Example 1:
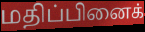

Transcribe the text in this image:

மதிப்பினைக்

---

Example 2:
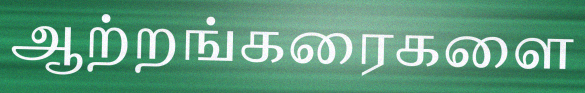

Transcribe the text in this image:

ஆற்றங்கரைகளை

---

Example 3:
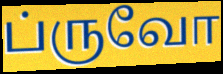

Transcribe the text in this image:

ப்ருவோ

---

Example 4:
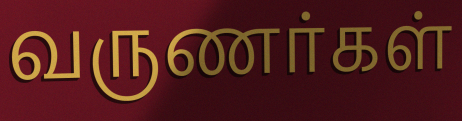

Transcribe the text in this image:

வருணர்கள்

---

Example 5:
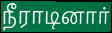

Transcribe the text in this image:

நீராடினார்